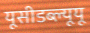
यूसीडब्ल्यूयू